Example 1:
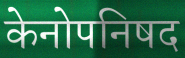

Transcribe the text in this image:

केनोपनिषद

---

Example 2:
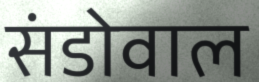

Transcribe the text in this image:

संडोवाल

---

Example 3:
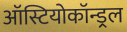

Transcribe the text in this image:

ऑस्टियोकॉन्ड्रल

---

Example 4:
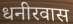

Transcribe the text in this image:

धनीरवास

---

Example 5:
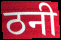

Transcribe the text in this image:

ठनी